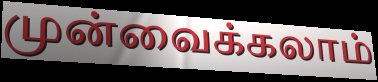
முன்வைக்கலாம்